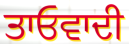
ਤਾਓਵਾਦੀ